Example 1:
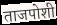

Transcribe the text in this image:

ताजपोशी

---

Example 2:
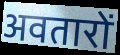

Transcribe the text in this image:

अवतारों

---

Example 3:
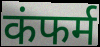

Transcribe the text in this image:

कंफर्म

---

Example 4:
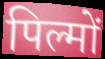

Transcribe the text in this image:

पिल्मों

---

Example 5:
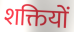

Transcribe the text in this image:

शक्तियों